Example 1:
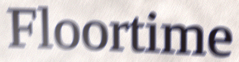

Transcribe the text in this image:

Floortime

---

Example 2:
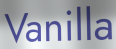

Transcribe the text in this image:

Vanilla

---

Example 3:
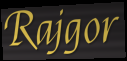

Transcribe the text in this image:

Rajgor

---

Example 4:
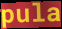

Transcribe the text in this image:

pula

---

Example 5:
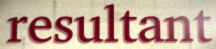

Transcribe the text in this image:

resultant